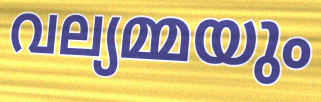
വല്യമ്മയും